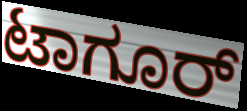
ಟಾಗೂರ್